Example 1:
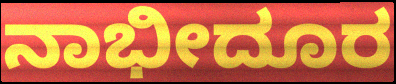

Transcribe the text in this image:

ನಾಭೀದೂರ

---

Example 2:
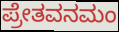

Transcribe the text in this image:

ಪ್ರೇತವನಮಂ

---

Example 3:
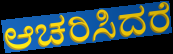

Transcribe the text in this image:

ಆಚರಿಸಿದರೆ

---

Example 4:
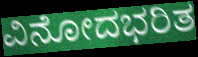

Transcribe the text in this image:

ವಿನೋದಭರಿತ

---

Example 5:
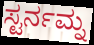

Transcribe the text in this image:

ಸ್ಟರ್ನಮ್ನ